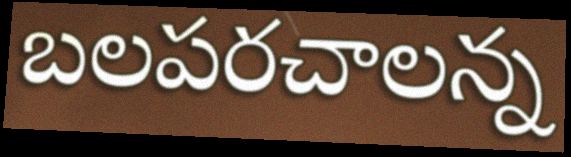
బలపరచాలన్న